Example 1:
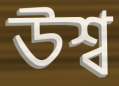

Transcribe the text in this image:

উশ্ব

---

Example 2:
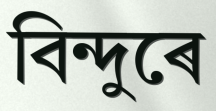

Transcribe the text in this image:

বিন্দুৰে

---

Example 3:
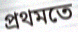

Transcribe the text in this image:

প্ৰথমতে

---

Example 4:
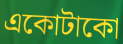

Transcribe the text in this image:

একোটাকো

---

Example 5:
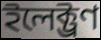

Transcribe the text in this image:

ইলেক্ট্ৰণ